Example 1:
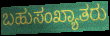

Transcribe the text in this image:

ಬಹುಸಂಖ್ಯಾತರು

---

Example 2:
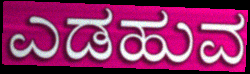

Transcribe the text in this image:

ಎಡಹುವ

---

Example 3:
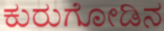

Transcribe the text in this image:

ಕುರುಗೋಡಿನ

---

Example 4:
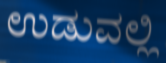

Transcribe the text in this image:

ಉಡುವಲ್ಲಿ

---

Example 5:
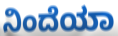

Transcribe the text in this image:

ನಿಂದೆಯಾ